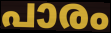
പാരം